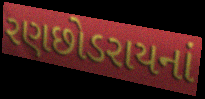
રણછોડરાયનાં